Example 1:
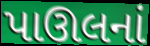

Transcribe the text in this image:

પાઊલનાં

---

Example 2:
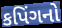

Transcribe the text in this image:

કપિંગનો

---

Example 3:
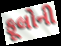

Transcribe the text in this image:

ફૂલોની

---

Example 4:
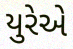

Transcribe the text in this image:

યુરેએ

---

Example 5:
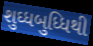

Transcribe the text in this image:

શુઘ્ધબુધ્ધિથી